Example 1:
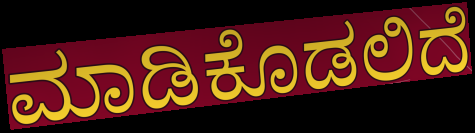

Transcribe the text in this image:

ಮಾಡಿಕೊಡಲಿದೆ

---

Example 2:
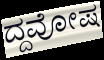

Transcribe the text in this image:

ದ್ದವೋಷ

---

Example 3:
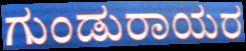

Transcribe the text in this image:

ಗುಂಡುರಾಯರ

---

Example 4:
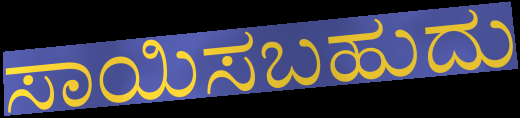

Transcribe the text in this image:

ಸಾಯಿಸಬಹುದು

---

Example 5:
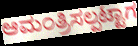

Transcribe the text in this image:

ಆಮಂತ್ರಿಸಲ್ಪಟ್ಟಾಗ